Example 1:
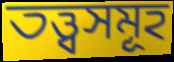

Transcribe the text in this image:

তত্ত্বসমূহ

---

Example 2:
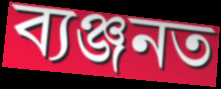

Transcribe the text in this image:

ব্যঞ্জনত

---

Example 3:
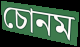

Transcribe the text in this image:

চোনম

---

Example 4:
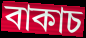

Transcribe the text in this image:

বাকাচ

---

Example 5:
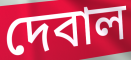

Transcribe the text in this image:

দেবাল